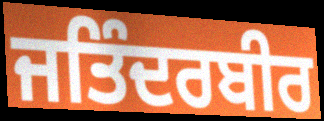
ਜਤਿੰਦਰਬੀਰ